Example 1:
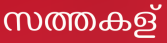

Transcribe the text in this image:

സത്തകള്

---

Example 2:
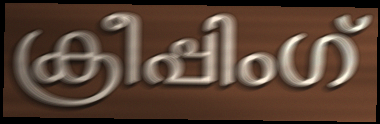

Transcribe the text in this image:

ക്രീപ്പിംഗ്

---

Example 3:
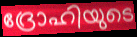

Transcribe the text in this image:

ദ്രോഹിയുടെ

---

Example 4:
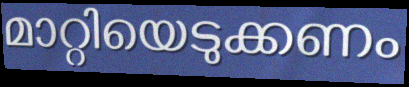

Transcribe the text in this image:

മാറ്റിയെടുക്കണം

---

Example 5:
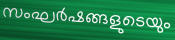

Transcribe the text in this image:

സംഘർഷങ്ങളുടെയും